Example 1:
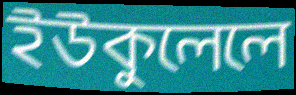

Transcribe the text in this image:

ইউকুলেলে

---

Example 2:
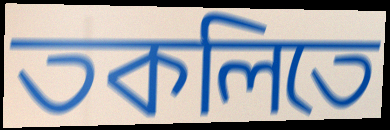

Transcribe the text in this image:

তকলিতে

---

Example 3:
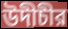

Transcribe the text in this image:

উদীচীর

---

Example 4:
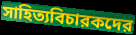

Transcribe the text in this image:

সাহিত্যবিচারকদের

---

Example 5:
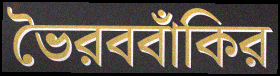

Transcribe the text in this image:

ভৈরববাঁকির